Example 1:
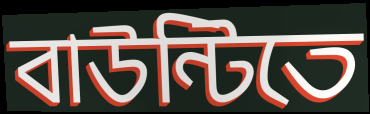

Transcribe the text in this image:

বাউন্টিতে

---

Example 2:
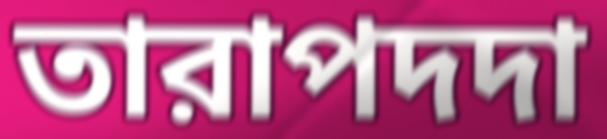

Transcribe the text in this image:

তারাপদদা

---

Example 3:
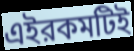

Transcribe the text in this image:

এইরকমটিই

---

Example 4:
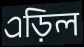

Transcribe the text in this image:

এড়িল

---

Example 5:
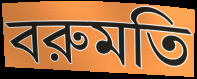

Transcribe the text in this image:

বরুমতি